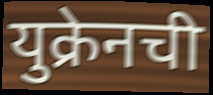
युक्रेनची